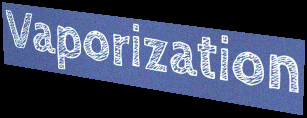
Vaporization